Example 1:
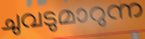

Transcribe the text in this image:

ചുവടുമാറുന്ന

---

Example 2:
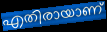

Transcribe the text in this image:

എതിരായാണ്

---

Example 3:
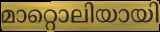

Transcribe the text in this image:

മാറ്റൊലിയായി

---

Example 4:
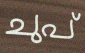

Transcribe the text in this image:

ചുപ്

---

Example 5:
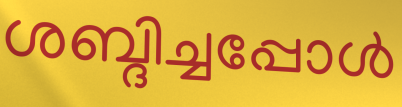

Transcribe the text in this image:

ശബ്ദിച്ചപ്പോൾ